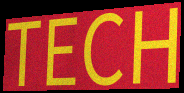
TECH